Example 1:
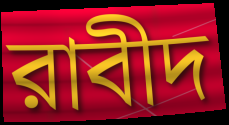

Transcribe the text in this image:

রাবীদ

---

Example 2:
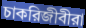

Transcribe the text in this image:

চাকরিজীবীরা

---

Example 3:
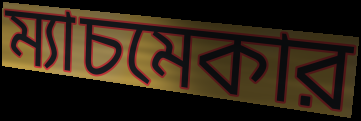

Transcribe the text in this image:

ম্যাচমেকার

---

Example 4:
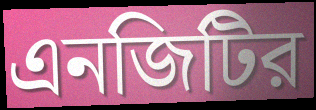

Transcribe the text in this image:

এনজিটির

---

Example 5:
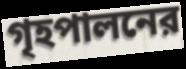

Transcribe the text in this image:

গৃহপালনের